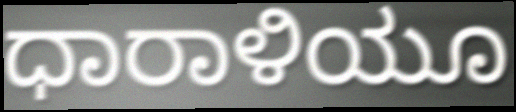
ಧಾರಾಳಿಯೂ